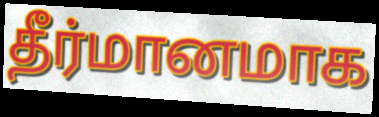
தீர்மானமாக